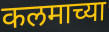
कलमाच्या